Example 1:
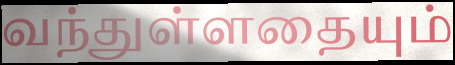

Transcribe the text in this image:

வந்துள்ளதையும்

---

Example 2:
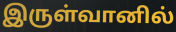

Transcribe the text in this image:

இருள்வானில்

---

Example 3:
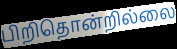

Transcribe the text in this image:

பிறிதொன்றில்லை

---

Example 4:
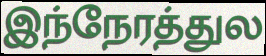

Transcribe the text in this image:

இந்நேரத்துல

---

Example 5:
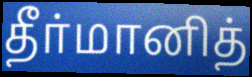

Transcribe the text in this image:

தீர்மானித்